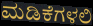
ಮಡಿಕೆಗಳಲಿ